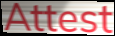
Attest